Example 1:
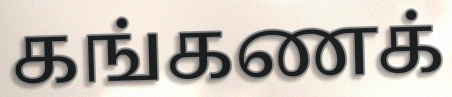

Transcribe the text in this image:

கங்கணக்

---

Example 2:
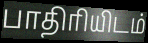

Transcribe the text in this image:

பாதிரியிடம்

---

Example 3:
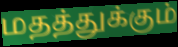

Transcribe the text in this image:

மதத்துக்கும்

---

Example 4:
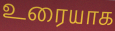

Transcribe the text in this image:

உரையாக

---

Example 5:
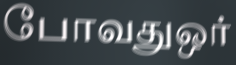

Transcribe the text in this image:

போவதுஒர்